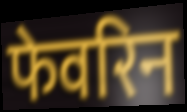
फेवरिन